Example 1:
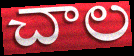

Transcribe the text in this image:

చాల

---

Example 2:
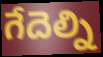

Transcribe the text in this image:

గేదెల్ని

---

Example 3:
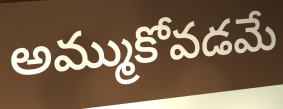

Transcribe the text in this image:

అమ్ముకోవడమే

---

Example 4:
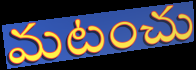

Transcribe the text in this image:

మటంచు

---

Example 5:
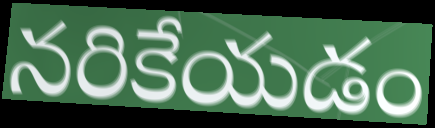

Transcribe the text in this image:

నరికేయడం